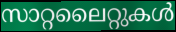
സാറ്റലൈറ്റുകൾ